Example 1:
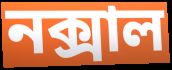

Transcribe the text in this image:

নক্সাল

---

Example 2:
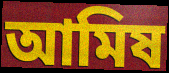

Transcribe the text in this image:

আমিষ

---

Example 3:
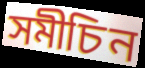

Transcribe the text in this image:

সমীচিন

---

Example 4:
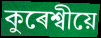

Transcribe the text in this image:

কুৰেশ্বীয়ে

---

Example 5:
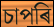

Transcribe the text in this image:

চাপৰি